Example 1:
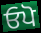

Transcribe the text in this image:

ਓਪੋ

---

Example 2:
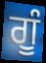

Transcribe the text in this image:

ਗੂੰ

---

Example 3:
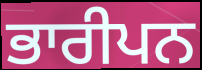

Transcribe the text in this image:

ਭਾਰੀਪਨ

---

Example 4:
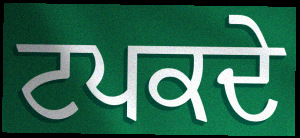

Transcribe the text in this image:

ਟਪਕਦੇ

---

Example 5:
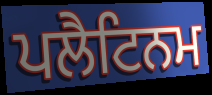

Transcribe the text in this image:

ਪਲੈਟਿਨਮ